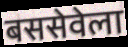
बससेवेला